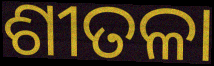
ଶୀତଳା